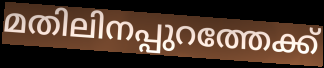
മതിലിനപ്പുറത്തേക്ക്